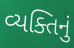
વ્યક્તિનું